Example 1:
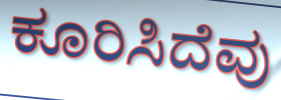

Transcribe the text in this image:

ಕೂರಿಸಿದೆವು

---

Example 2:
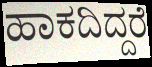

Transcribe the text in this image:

ಹಾಕದಿದ್ದರೆ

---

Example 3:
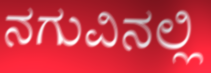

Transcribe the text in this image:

ನಗುವಿನಲ್ಲಿ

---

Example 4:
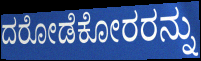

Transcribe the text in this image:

ದರೋಡೆಕೋರರನ್ನು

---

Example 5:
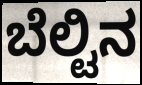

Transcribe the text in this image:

ಬೆಲ್ಟಿನ